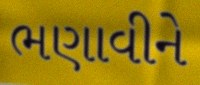
ભણાવીને